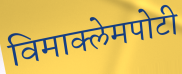
विमाक्लेमपोटी